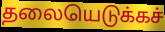
தலையெடுக்கச்